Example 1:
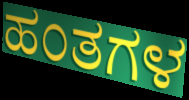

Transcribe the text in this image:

ಹಂತಗಳ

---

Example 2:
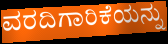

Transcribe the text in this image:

ವರದಿಗಾರಿಕೆಯನ್ನು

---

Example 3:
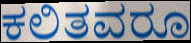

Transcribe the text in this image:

ಕಲಿತವರೂ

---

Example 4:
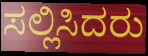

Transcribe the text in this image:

ಸಲ್ಲಿಸಿದರು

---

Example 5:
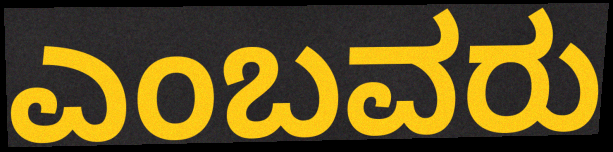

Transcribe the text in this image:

ಎಂಬವರು